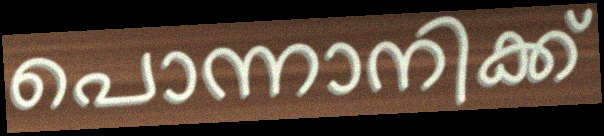
പൊന്നാനിക്ക്